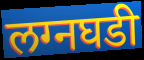
लग्नघडी